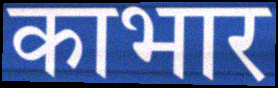
काभार